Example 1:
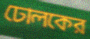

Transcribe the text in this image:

ঢোলকের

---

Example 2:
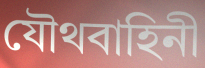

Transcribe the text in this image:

যৌথবাহিনী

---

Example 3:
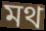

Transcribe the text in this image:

মথ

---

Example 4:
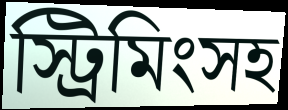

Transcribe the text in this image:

স্ট্রিমিংসহ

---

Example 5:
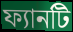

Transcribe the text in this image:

ফ্যানটি